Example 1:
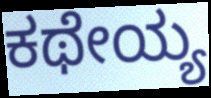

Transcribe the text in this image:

ಕಥೇಯ್ಯ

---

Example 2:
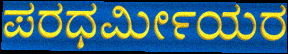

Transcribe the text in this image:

ಪರಧರ್ಮೀಯರ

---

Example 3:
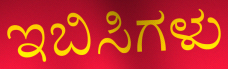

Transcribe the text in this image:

ಇಬಿಸಿಗಳು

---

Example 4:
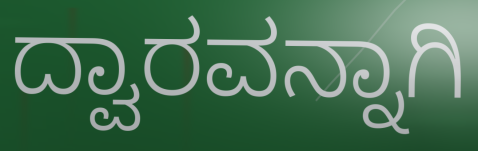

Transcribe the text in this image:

ದ್ವಾರವನ್ನಾಗಿ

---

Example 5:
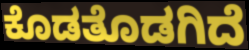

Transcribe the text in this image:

ಕೊಡತೊಡಗಿದೆ